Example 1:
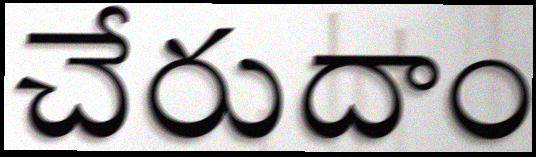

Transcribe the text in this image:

చేరుదాం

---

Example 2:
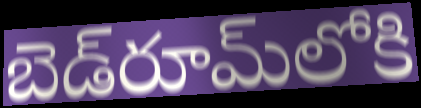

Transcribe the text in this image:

బెడ్‌రూమ్‌లోకి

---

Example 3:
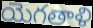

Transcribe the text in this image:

యెగతాళి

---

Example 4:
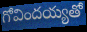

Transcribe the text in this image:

గోవిందయ్యతో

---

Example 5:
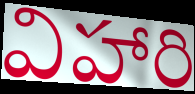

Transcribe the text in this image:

విహారి